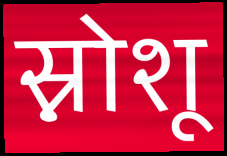
स्नोशू